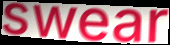
swear